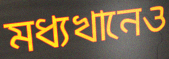
মধ্যখানেও